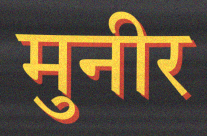
मुनीर